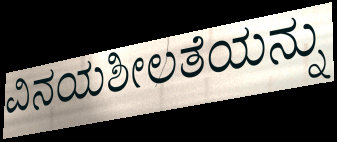
ವಿನಯಶೀಲತೆಯನ್ನು